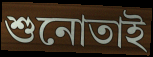
শুনোতাই